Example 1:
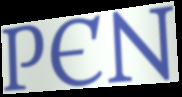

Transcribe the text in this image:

PEN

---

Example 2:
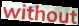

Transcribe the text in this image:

without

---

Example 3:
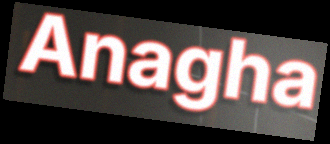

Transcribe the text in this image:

Anagha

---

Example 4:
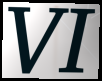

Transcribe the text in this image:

VI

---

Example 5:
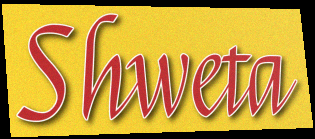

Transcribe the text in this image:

Shweta